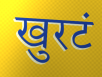
खुरटं